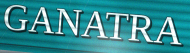
GANATRA